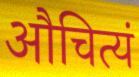
औचित्यं